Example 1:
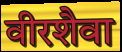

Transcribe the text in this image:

वीरशैवा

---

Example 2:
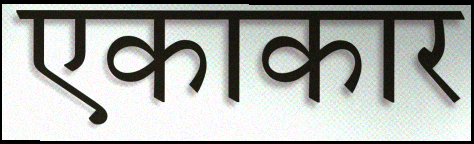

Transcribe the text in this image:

एकाकार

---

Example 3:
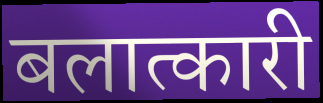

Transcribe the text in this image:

बलात्कारी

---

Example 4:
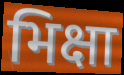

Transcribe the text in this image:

भिक्षा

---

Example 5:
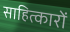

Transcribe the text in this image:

साहित्कारों